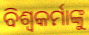
ବିଶ୍ଵକର୍ମାଙ୍କୁ